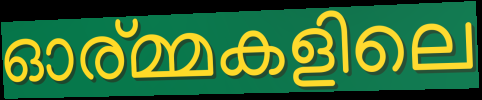
ഓര്മ്മകളിലെ